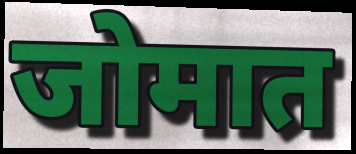
जोमात